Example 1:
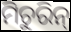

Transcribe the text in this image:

ମିଚୁରିନ୍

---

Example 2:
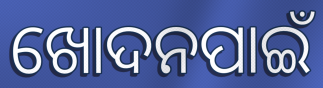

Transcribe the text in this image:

ଖୋଦନପାଇଁ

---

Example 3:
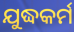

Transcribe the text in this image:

ଯୁଦ୍ଧକର୍ମ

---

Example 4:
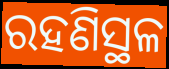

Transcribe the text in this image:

ରହଣିସ୍ଥଳ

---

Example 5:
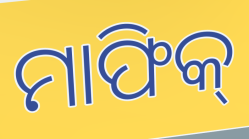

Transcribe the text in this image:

ମାଫିକ୍